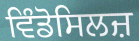
ਵਿੰਡੋਸਿਲਜ਼